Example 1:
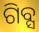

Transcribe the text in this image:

ଗିବ୍ସ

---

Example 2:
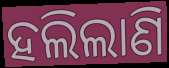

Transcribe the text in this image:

ହଲିଲାଣି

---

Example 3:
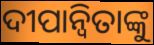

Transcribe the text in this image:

ଦୀପାନ୍ୱିତାଙ୍କୁ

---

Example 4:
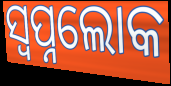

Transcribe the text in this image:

ସ୍ୱପ୍ନଲୋକ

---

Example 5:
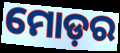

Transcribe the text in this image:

ମୋଡ଼ର